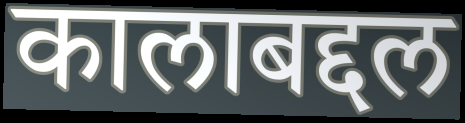
कालाबद्दल